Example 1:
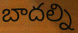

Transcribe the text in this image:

బాదల్ని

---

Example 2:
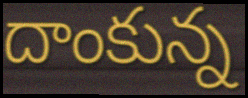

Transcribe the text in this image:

దాంకున్న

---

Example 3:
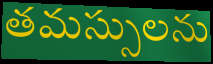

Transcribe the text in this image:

తమస్సులను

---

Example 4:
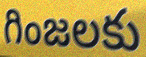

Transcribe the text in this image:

గింజలకు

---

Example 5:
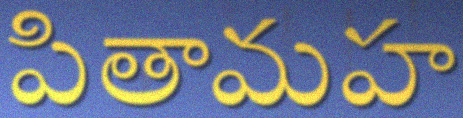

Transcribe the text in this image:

పితామహ